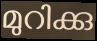
മുറിക്കു